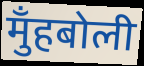
मुँहबोली